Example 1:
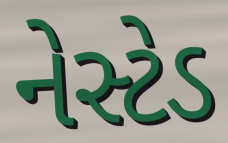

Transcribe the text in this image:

નેસ્ટેડ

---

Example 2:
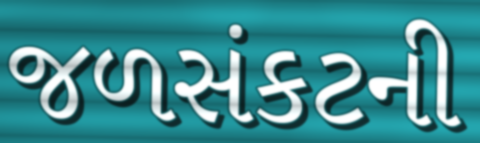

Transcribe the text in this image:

જળસંકટની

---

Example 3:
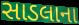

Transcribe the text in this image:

સાડલાના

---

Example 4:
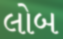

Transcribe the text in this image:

લોબ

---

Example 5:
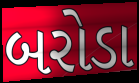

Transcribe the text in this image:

બરોડા